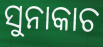
ସୁନାକାଚ